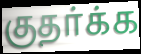
குதர்க்க